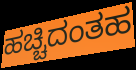
ಹಚ್ಚಿದಂತಹ